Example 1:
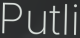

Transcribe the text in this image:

Putli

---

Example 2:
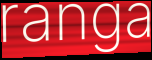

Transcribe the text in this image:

ranga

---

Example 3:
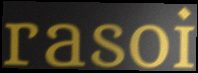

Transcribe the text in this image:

rasoi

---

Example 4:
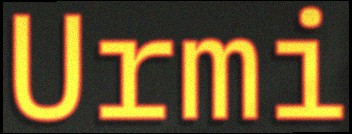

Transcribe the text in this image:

Urmi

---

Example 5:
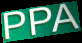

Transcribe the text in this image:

PPA